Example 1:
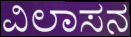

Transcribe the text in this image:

ವಿಲಾಸನ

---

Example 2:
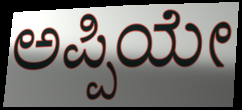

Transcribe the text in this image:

ಅಪ್ಪಿಯೇ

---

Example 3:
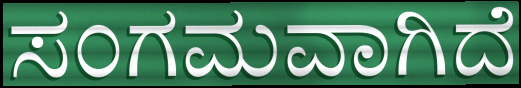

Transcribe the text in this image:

ಸಂಗಮವಾಗಿದೆ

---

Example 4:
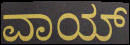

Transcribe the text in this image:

ವಾಯ್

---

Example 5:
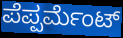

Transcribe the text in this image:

ಪೆಪ್ಪರ್ಮೆಂಟ್